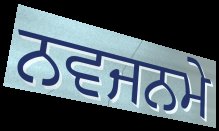
ਨਵਜਨਮੇ